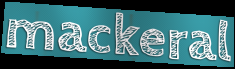
mackeral